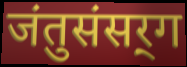
जंतुसंसर्ग